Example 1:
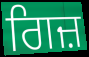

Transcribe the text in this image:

ਗਿਜ਼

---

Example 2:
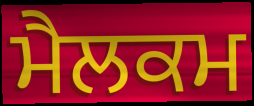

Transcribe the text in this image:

ਮੈਲਕਮ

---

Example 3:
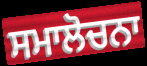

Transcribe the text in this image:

ਸਮਾਲੋਚਨਾ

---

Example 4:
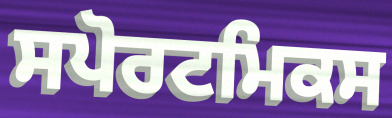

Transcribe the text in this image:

ਸਪੋਰਟਮਿਕਸ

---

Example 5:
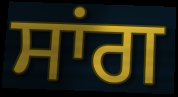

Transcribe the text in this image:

ਸਾਂਗ